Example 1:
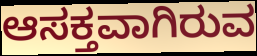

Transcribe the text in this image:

ಆಸಕ್ತವಾಗಿರುವ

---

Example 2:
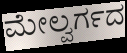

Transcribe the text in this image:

ಮೇಲ್ವರ್ಗದ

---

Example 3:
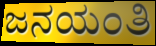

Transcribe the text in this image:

ಜನಯಂತಿ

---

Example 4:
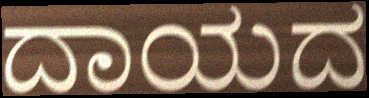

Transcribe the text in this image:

ದಾಯದ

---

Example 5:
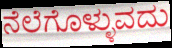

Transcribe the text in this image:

ನೆಲೆಗೊಳ್ಳುವದು